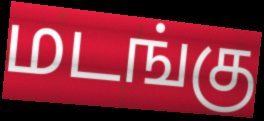
மடங்கு